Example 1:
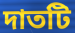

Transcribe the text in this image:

দাতটি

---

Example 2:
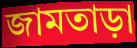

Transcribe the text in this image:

জামতাড়া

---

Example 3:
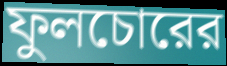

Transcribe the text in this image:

ফুলচোরের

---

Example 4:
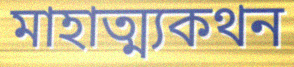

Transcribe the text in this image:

মাহাত্ম্যকথন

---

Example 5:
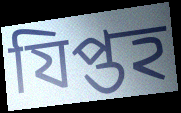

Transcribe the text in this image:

যিপ্তহ